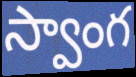
స్వాంగ